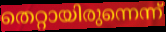
തെറ്റായിരുന്നെന്ന്